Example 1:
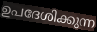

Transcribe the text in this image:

ഉപദേശിക്കുന്ന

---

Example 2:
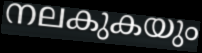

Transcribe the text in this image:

നലകുകയും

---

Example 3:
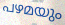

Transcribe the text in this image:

പഴമയും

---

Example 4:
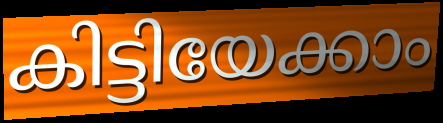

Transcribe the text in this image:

കിട്ടിയേക്കാം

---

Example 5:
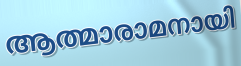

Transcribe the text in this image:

ആത്മാരാമനായി